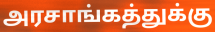
அரசாங்கத்துக்கு